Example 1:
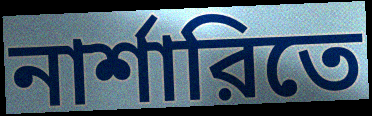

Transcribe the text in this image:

নার্শারিতে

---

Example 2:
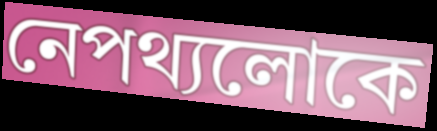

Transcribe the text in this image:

নেপথ্যলোকে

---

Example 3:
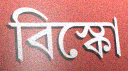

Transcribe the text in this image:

বিস্কো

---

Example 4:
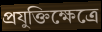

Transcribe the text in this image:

প্রযুক্তিক্ষেত্রে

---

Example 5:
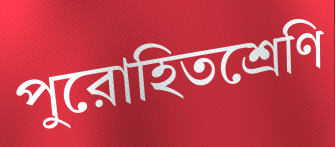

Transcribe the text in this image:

পুরোহিতশ্রেণি